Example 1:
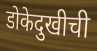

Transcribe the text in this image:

डोकेदुखीची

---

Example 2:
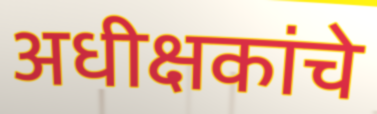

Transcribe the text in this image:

अधीक्षकांचे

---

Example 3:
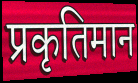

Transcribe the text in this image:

प्रकृतिमान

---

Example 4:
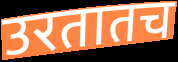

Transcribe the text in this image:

उरतातच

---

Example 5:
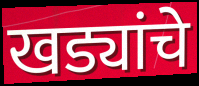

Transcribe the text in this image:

खड्यांचे